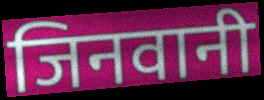
जिनवानी